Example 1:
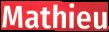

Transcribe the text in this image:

Mathieu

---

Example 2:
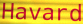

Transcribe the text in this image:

Havard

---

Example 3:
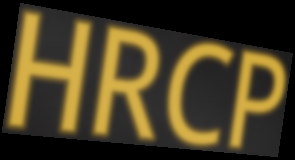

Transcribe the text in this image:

HRCP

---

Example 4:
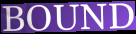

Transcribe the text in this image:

BOUND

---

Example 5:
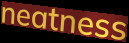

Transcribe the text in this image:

neatness